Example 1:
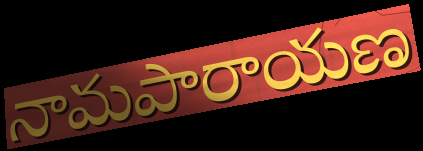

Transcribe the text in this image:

నామపారాయణ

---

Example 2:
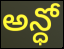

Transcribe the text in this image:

అన్ధో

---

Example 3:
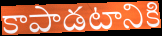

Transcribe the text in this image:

కాపాడటానికి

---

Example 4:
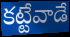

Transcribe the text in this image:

కట్టేవాడే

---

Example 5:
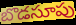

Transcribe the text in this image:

బొడసూపు